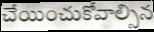
చేయించుకోవాల్సిన